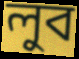
লুব